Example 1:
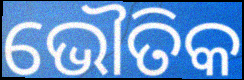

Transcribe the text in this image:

ଭୌତିକ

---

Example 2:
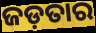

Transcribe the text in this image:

ଜଡ଼ତାର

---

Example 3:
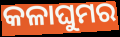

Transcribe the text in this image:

କଳାଘୁମର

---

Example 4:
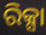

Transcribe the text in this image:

ରିକ୍ସା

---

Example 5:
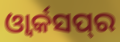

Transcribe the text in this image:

ଓ୍ୱାର୍କସପ୍‌ର